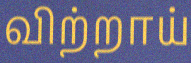
விற்றாய்